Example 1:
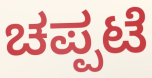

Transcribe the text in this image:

ಚಪ್ಪಟೆ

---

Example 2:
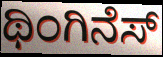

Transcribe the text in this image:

ಥಿಂಗಿನೆಸ್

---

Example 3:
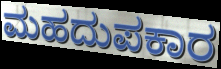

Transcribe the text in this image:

ಮಹದುಪಕಾರ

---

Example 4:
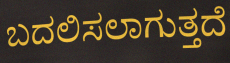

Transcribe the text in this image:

ಬದಲಿಸಲಾಗುತ್ತದೆ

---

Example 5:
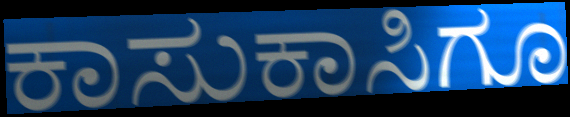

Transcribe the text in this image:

ಕಾಸುಕಾಸಿಗೂ